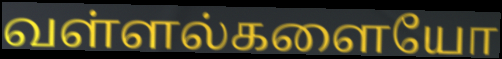
வள்ளல்களையோ